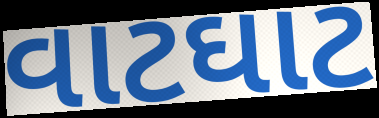
વાટઘાટ